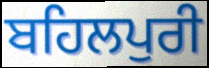
ਬਹਿਲਪੁਰੀ